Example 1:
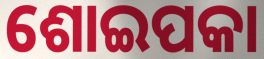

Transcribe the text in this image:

ଶୋଇପକା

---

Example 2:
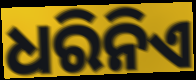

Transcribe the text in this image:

ଧରିନିଏ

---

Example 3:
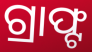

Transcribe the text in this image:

ଗ୍ରାଫ୍ଟ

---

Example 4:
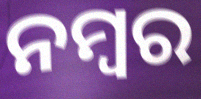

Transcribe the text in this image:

ନମ୍ବର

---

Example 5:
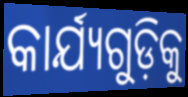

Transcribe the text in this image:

କାର୍ଯ୍ୟଗୁଡ଼ିକୁ